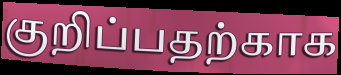
குறிப்பதற்காக